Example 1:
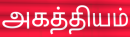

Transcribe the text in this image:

அகத்தியம்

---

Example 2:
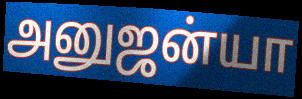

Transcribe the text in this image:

அனுஜன்யா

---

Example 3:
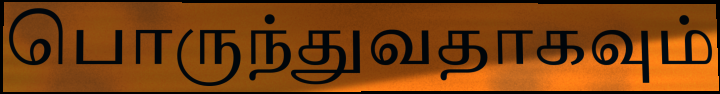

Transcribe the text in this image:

பொருந்துவதாகவும்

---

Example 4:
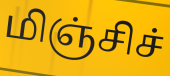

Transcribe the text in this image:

மிஞ்சிச்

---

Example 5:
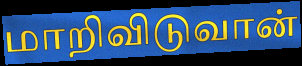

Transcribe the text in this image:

மாறிவிடுவான்